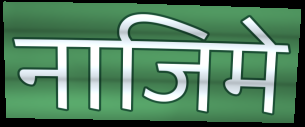
नाजिमे